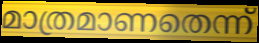
മാത്രമാണതെന്ന്